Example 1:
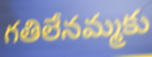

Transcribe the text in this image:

గతిలేనమ్మకు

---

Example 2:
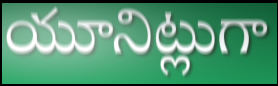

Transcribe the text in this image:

యూనిట్లుగా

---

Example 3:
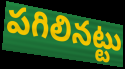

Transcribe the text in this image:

పగిలినట్టు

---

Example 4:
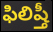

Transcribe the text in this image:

ఫిలిష్తీ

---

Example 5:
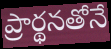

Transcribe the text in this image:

ప్రార్థనతోనే